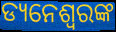
ଡ୍ୟନେଶ୍ୱରଙ୍କ